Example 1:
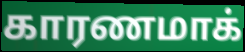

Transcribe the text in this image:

காரணமாக்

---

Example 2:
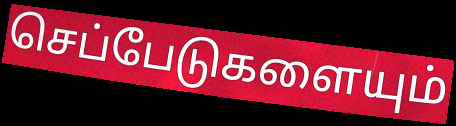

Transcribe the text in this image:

செப்பேடுகளையும்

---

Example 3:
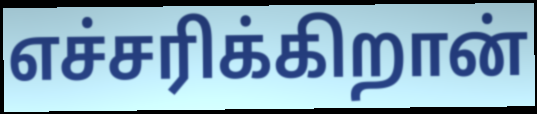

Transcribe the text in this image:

எச்சரிக்கிறான்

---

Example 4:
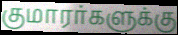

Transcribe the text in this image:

குமாரர்களுக்கு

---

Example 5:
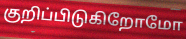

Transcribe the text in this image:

குறிப்பிடுகிறோமோ